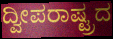
ದ್ವೀಪರಾಷ್ಟ್ರದ